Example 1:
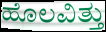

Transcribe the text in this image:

ಹೊಲವಿತ್ತು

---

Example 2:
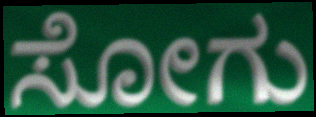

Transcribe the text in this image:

ಸೋಗು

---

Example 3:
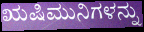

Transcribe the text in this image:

ಋಷಿಮುನಿಗಳನ್ನು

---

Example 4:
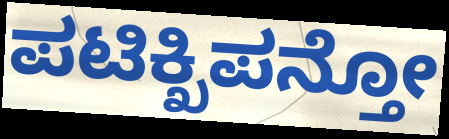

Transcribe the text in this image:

ಪಟಿಕ್ಖಿಪನ್ತೋ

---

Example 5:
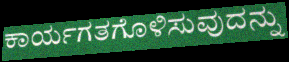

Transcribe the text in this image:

ಕಾರ್ಯಗತಗೊಳಿಸುವುದನ್ನು